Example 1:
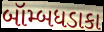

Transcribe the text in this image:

બૉમ્બધડાકા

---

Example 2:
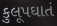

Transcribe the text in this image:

કુલૂપઘાતં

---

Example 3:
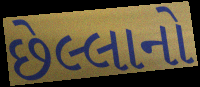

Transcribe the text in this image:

છેલ્લાનો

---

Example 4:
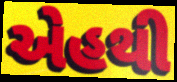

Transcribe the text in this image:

એહથી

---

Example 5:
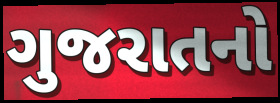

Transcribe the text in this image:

ગુજરાતનો